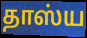
தாஸ்ய